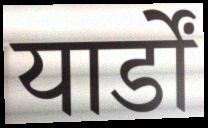
यार्डों